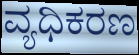
ವ್ಯಧಿಕರಣ